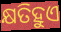
କ୍ଷତିହୁଏ